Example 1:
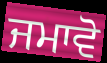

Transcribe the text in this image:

ਜਮਾਵੋ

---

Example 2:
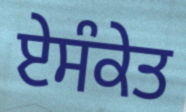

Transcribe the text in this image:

ਏਸੰਕੇਤ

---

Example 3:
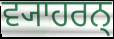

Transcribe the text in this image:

ਵ੍ਯਾਹਰਨ੍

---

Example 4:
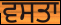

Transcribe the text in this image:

ਵਸਤਾ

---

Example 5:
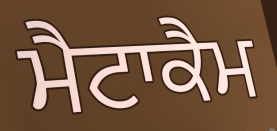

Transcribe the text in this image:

ਮੈਟਾਕੈਮ